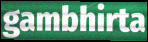
gambhirta